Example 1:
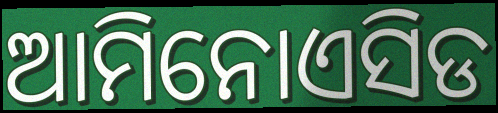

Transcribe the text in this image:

ଆମିନୋଏସିଡ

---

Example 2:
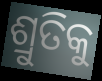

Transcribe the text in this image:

ଶ୍ରୁତିକୁ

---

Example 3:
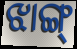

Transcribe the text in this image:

ଝାଙ୍ଗ୍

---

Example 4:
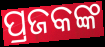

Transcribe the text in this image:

ପ୍ରଜକଙ୍କ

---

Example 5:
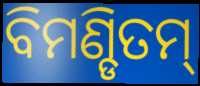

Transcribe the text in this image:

ବିମଣ୍ଡିତମ୍